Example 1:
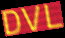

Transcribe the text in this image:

DVL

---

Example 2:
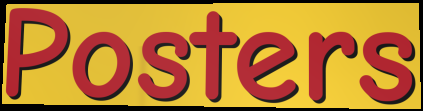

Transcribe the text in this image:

Posters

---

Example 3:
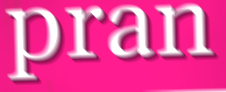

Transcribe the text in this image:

pran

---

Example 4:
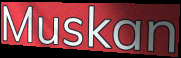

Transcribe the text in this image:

Muskan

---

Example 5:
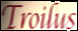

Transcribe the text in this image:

Troilus